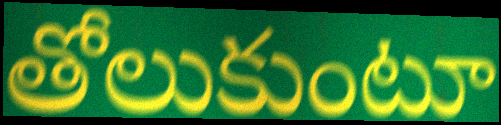
తోలుకుంటూ